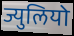
ज्युलियो